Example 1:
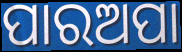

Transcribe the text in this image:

ପାରଅପା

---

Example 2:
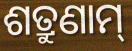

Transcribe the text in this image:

ଶତ୍ରୁଣାମ୍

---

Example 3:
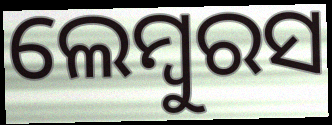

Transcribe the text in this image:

ଲେମ୍ବୁରସ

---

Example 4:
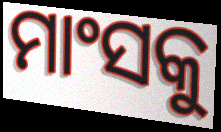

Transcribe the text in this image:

ମାଂସକୁ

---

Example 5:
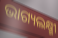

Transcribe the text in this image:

ଭାଗ୍ୟଲକ୍ଷ୍ମୀ